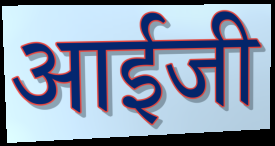
आईजी